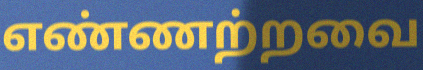
எண்ணற்றவை